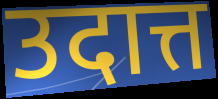
उदात्त